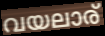
വയലാര്